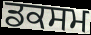
ਡਕਸਮ